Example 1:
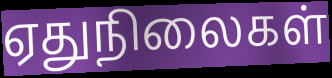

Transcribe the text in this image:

ஏதுநிலைகள்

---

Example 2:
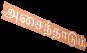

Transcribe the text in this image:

அசைந்தாடும்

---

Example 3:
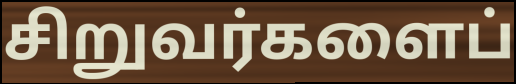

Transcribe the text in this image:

சிறுவர்களைப்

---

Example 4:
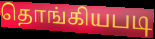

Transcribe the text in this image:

தொங்கியபடி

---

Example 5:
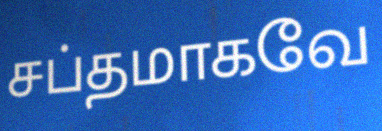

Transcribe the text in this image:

சப்தமாகவே